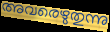
അവരെഴുതുന്നു